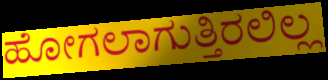
ಹೋಗಲಾಗುತ್ತಿರಲಿಲ್ಲ